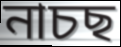
নাচছ